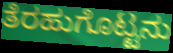
ತೆರಹುಗೊಟ್ಟನು